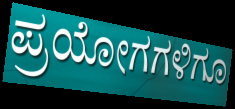
ಪ್ರಯೋಗಗಳಿಗೂ